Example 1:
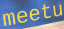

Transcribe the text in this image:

meetu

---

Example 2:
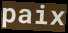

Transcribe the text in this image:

paix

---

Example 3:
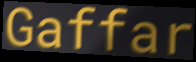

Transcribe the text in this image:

Gaffar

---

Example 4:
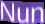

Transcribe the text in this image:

Nun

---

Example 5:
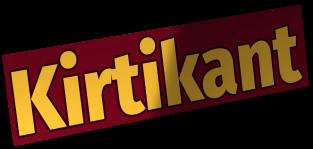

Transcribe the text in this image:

Kirtikant